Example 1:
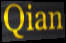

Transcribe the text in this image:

Qian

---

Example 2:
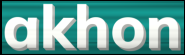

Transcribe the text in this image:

akhon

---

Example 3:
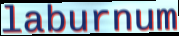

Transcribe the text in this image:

laburnum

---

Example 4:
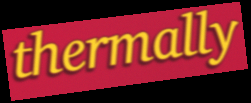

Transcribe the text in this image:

thermally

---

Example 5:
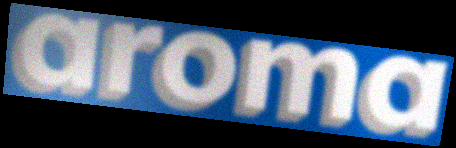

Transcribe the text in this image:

aroma